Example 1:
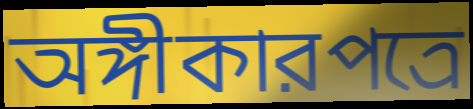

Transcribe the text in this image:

অঙ্গীকারপত্রে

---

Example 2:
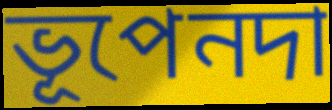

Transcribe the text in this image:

ভূপেনদা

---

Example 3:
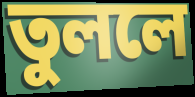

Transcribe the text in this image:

তুললে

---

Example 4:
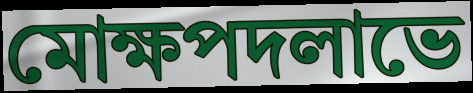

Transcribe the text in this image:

মোক্ষপদলাভে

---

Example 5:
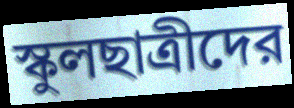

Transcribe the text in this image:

স্কুলছাত্রীদের